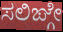
ಸಲಿಙ್ಗೇ